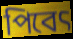
পিবেৎ